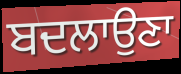
ਬਦਲਾਉਣਾ